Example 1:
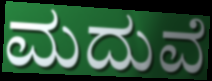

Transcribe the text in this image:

ಮದುವೆ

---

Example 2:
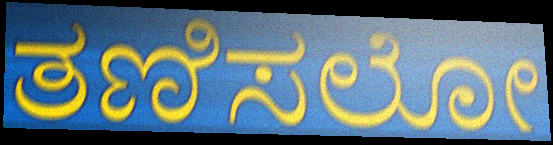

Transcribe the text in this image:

ತಣಿಸಲೋ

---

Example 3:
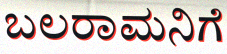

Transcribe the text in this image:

ಬಲರಾಮನಿಗೆ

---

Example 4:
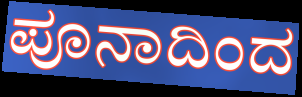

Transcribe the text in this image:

ಪೂನಾದಿಂದ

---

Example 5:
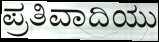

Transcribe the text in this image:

ಪ್ರತಿವಾದಿಯು